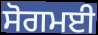
ਸੋਗਮਈ